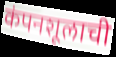
कंपनशूलाची